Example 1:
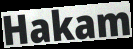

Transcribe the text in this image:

Hakam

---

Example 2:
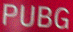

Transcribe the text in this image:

PUBG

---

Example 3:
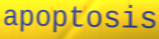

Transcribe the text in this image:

apoptosis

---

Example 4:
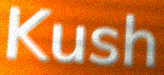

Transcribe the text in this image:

Kush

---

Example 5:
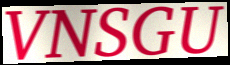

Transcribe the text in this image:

VNSGU